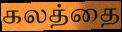
கலத்தை